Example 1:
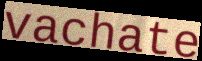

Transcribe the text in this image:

vachate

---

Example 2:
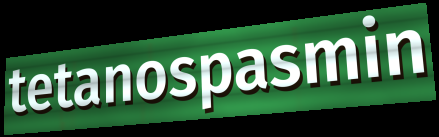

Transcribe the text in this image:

tetanospasmin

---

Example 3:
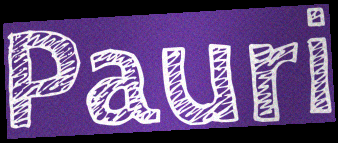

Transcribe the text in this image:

Pauri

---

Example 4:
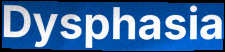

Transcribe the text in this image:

Dysphasia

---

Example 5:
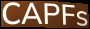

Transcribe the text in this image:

CAPFs